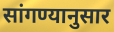
सांगण्यानुसार